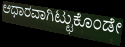
ಆಧಾರವಾಗಿಟ್ಟುಕೊಂಡೇ